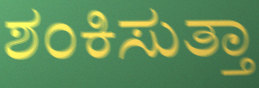
ಶಂಕಿಸುತ್ತಾ